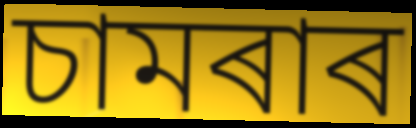
চামৰাৰ